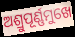
ଅଶ୍ରୁପୂର୍ଣ୍ଣମୁଖେ